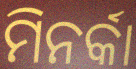
ମିନର୍କା